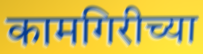
कामगिरीच्या